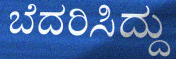
ಬೆದರಿಸಿದ್ದು